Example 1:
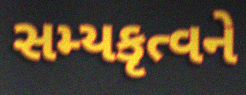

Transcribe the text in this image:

સમ્યકૃત્વને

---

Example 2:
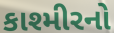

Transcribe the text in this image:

કાશ્મીરનો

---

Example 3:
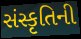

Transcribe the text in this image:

સંસ્કૃતિની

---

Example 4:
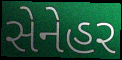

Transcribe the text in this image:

સેનેહર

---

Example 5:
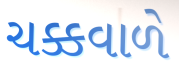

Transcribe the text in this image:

ચક્કવાળે